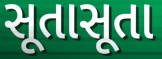
સૂતાસૂતા